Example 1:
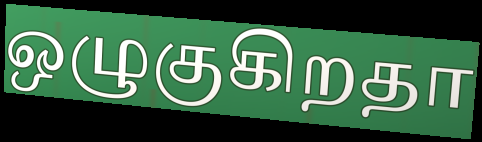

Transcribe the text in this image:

ஒழுகுகிறதா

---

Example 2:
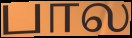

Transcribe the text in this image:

பால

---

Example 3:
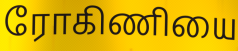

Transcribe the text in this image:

ரோகிணியை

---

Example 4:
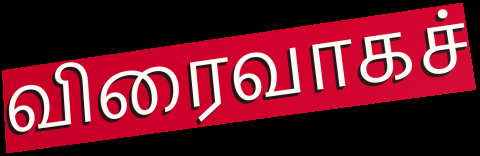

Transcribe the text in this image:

விரைவாகச்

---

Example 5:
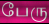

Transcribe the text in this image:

பேரு